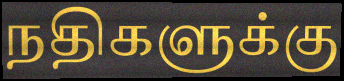
நதிகளுக்கு